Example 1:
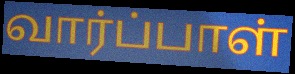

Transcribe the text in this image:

வார்ப்பாள்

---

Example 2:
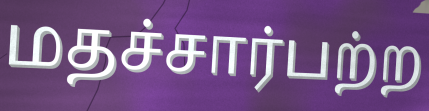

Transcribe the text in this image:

மதச்சார்பற்ற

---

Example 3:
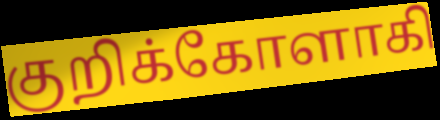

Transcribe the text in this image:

குறிக்கோளாகி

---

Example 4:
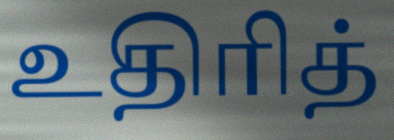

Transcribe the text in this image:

உதிரித்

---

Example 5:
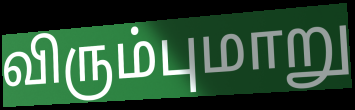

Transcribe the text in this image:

விரும்புமாறு